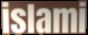
islami